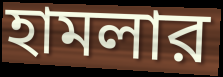
হামলার